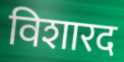
विशारद